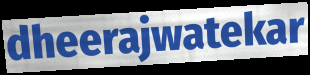
dheerajwatekar